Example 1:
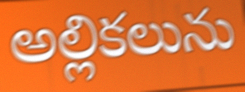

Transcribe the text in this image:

అల్లికలును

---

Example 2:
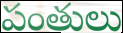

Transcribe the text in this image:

పంతులు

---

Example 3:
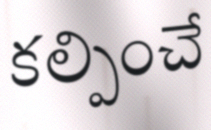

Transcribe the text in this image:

కల్పించే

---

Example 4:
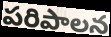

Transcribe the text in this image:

పరిపాలన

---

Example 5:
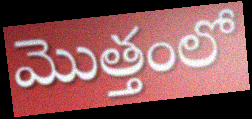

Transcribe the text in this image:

మొత్తంలో